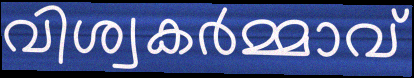
വിശ്വകർമ്മാവ്